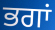
ਭਗਾਂ